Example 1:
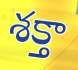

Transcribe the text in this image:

శక్తా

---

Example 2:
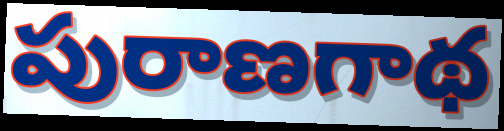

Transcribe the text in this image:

పురాణగాథ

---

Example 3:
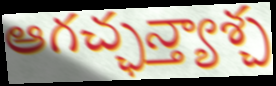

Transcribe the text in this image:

ఆగచ్ఛన్త్యాశ్చ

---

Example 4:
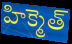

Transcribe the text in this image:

హిక్మెత్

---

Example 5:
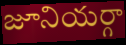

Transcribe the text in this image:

జూనియర్గా